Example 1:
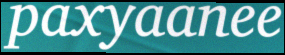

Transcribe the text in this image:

paxyaanee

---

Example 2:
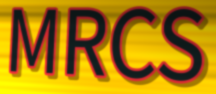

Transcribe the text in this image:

MRCS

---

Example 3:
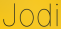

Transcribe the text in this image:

Jodi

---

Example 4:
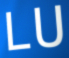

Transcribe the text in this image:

LU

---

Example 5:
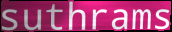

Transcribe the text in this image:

suthrams